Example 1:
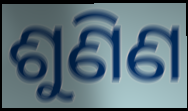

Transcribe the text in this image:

ଶୁଣିଣ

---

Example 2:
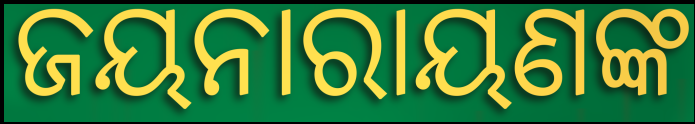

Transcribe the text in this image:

ଜୟନାରାୟଣଙ୍କ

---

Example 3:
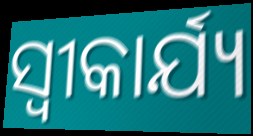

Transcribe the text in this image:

ସ୍ଵୀକାର୍ଯ୍ୟ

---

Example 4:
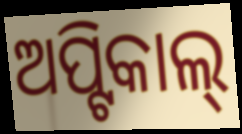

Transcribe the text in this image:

ଅପ୍ଟିକାଲ୍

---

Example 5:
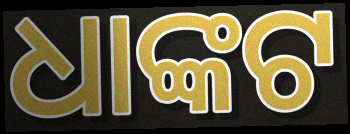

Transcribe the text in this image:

ଧାଙ୍କଟ